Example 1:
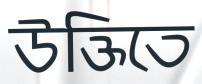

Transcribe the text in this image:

উক্তিতে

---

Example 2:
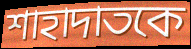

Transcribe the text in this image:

শাহাদাতকে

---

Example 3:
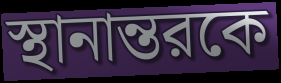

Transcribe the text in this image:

স্থানান্তরকে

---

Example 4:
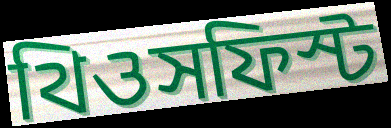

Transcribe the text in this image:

থিওসফিস্ট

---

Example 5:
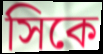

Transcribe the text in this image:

সিকে